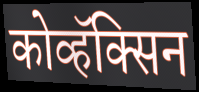
कोव्हॅक्सिन